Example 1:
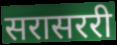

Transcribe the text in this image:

सरासररी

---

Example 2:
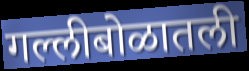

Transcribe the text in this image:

गल्लीबोळातली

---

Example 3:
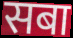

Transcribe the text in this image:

सबा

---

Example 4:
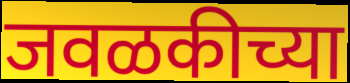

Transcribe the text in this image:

जवळकीच्या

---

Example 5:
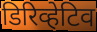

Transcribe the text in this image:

डिरिव्हेटिव